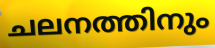
ചലനത്തിനും